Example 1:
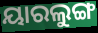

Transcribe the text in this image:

ୟାରଲୁଙ୍ଗ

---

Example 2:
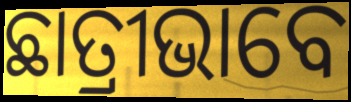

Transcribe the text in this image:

ଛାତ୍ରୀଭାବେ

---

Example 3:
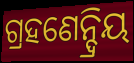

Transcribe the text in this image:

ଗ୍ରହଣେନ୍ଦ୍ରିୟ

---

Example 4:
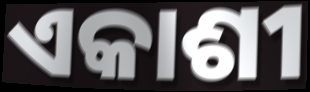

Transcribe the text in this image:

ଏକାଶୀ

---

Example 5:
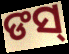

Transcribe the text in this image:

ଙସ୍